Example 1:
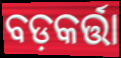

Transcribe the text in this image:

ବଡ଼କର୍ତ୍ତା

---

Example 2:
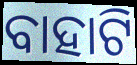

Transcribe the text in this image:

ବାହାଟି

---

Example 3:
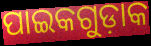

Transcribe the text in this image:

ପାଇକଗୁଡ଼ାକ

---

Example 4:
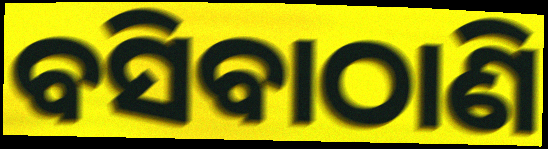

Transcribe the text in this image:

ବସିବାଠାଣି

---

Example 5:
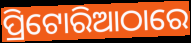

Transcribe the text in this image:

ପ୍ରିଟୋରିଆଠାରେ